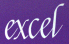
excel